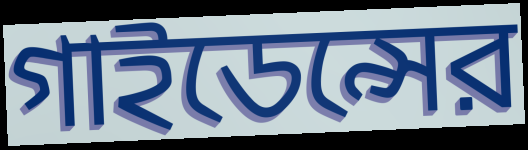
গাইডেন্সের